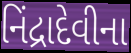
નિંદ્રાદેવીના